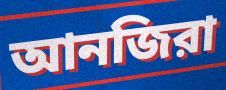
আনজিরা